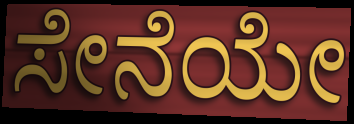
ಸೇನೆಯೇ